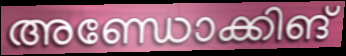
അണ്ഡോക്കിങ്